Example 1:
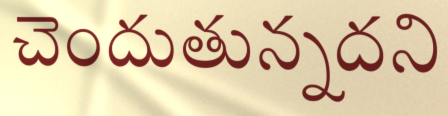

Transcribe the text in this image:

చెందుతున్నదని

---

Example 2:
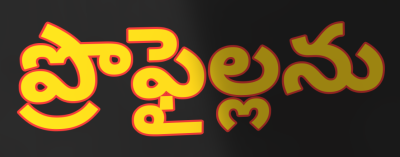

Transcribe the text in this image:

ప్రొఫైల్లను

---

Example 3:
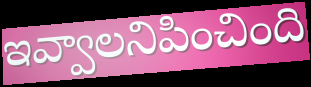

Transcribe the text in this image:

ఇవ్వాలనిపించింది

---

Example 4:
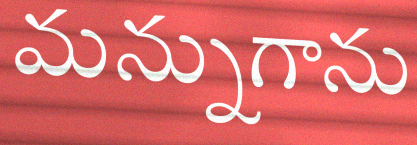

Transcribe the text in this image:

మన్నుగాను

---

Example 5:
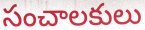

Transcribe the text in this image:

సంచాలకులు